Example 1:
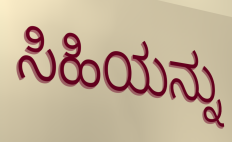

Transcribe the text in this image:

ಸಿಹಿಯನ್ನು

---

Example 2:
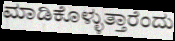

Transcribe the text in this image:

ಮಾಡಿಕೊಳ್ಳುತ್ತಾರೆಂದು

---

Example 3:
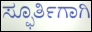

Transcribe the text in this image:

ಸ್ಫೂರ್ತಿಗಾಗಿ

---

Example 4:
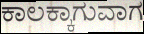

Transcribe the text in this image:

ಕಾಲಕ್ಕಾಗುವಾಗ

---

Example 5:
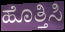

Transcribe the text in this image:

ಹೊತ್ತಿಸಿ